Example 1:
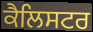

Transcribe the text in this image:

ਕੈਲਿਸਟਰ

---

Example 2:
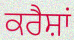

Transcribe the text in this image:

ਕਰੈਸ਼ਾਂ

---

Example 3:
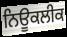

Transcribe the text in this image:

ਨਿਊਕਲੀਕ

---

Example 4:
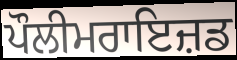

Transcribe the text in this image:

ਪੌਲੀਮਰਾਇਜ਼ਡ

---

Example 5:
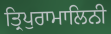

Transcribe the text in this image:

ਤ੍ਰਿਪੁਰਾਮਾਲਿਨੀ